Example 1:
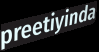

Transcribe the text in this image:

preetiyinda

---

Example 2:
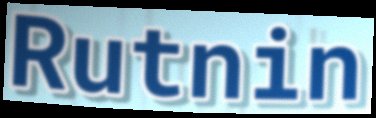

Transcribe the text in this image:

Rutnin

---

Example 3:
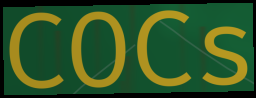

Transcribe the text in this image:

COCs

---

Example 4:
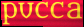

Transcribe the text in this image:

pucca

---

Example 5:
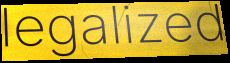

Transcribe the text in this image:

legalized